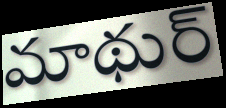
మాథుర్